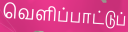
வெளிப்பாட்டுப்